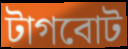
টাগবোট